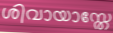
ശിവായാസ്തേ